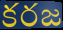
కరజ